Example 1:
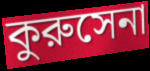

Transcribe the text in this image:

কুরুসেনা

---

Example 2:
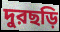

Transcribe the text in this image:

দুরছড়ি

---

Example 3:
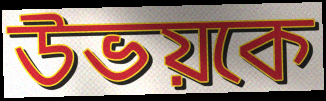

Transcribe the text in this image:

উভয়কে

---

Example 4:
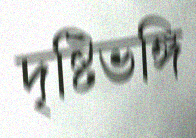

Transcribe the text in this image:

দৃষ্টিভঙ্গি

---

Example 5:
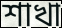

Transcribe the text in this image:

শাখা